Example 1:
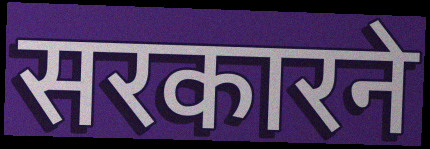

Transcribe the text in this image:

सरकारने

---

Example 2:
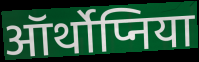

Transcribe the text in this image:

ऑर्थोप्निया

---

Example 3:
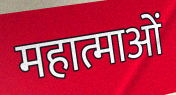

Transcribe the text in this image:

महात्माओं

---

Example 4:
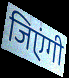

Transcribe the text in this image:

जिएंगी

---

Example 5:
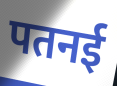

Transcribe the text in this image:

पतनई